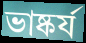
ভাষ্কর্য